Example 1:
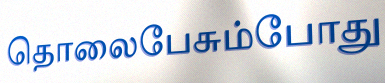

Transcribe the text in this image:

தொலைபேசும்போது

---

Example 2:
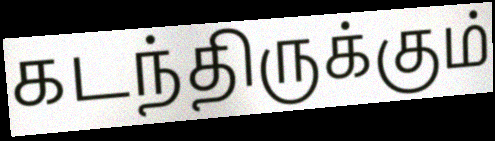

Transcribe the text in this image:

கடந்திருக்கும்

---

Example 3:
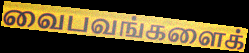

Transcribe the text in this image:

வைபவங்களைக்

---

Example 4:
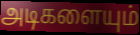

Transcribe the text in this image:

அடிகளையும்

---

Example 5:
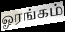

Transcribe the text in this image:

ஓரங்கம்